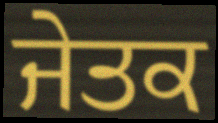
ਜੇਤਕ